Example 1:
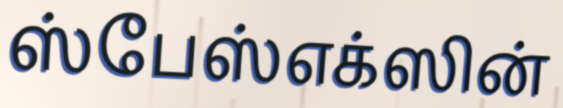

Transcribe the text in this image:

ஸ்பேஸ்எக்ஸின்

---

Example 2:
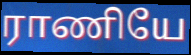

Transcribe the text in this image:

ராணியே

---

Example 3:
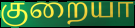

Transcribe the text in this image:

குறையா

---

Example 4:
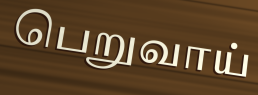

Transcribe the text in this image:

பெறுவாய்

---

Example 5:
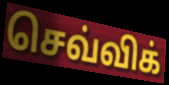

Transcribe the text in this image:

செவ்விக்